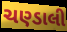
ચણ્ડાલી